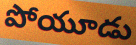
పోయూడు